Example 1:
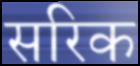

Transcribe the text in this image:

सरिक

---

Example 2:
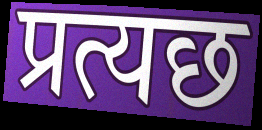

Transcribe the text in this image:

प्रत्यछ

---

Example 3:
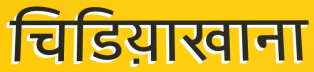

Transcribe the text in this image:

चिडिय़ाखाना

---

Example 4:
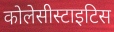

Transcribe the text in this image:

कोलेसीस्टाइटिस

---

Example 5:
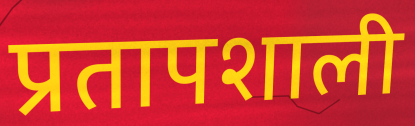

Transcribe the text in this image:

प्रतापशाली